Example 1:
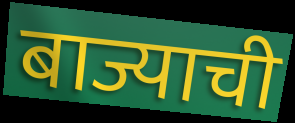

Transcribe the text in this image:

बाज्याची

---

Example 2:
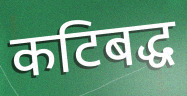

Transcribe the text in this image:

कटिबद्ध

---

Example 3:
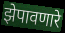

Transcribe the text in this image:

झेपावणारे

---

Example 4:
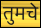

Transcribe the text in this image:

तुमचे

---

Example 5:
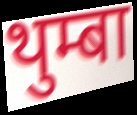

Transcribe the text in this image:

थुम्बा